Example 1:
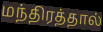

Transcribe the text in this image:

மந்திரத்தால்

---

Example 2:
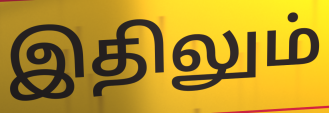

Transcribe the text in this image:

இதிலும்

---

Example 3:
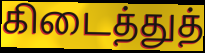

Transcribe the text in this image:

கிடைத்துத்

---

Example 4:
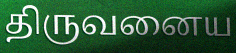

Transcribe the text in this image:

திருவனைய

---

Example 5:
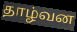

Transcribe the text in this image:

தாழ்வன